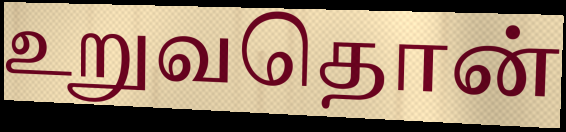
உறுவதொன்